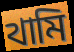
থামি